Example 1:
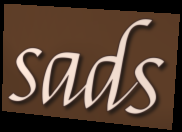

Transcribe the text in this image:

sads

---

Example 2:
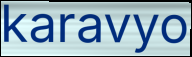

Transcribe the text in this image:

karavyo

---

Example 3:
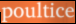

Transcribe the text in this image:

poultice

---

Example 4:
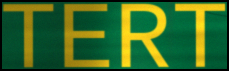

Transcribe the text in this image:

TERT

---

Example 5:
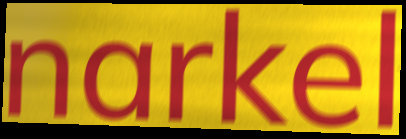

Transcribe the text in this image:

narkel